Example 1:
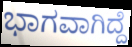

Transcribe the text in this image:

ಭಾಗವಾಗಿದ್ದೆ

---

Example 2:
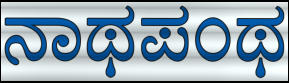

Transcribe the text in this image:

ನಾಥಪಂಥ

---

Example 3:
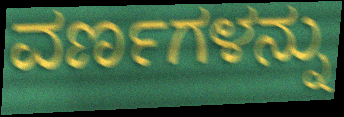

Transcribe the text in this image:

ವರ್ಣಗಳನ್ನು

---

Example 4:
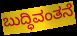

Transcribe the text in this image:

ಬುದ್ಧಿವಂತನೆ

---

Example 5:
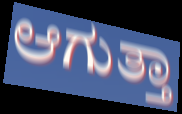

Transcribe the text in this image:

ಆಗುತ್ತಾ